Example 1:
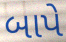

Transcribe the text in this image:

બાપે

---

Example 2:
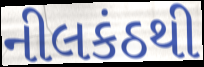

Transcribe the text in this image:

નીલકંઠથી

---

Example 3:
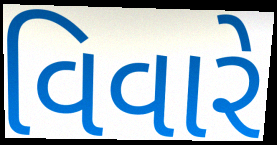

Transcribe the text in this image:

વિવારે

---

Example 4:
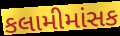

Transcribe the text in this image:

કલામીમાંસક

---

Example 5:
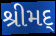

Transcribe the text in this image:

શ્રીમદ્‍